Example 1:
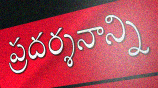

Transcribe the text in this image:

ప్రదర్శనాన్ని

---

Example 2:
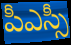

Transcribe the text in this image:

పీఎస్సీ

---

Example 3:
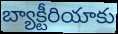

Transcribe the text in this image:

బ్యాక్టీరియాకు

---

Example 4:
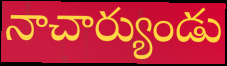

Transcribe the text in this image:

నాచార్యుండు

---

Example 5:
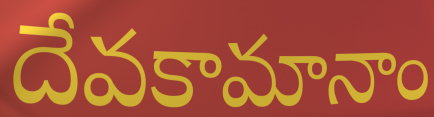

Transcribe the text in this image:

దేవకామానాం